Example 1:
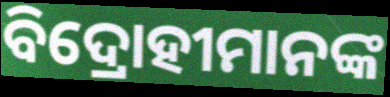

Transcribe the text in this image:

ବିଦ୍ରୋହୀମାନଙ୍କ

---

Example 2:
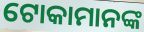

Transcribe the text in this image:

ଟୋକାମାନଙ୍କ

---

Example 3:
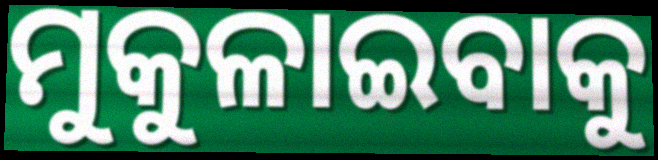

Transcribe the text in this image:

ମୁକୁଳାଇବାକୁ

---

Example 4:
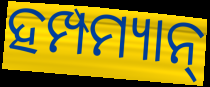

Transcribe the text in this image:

ହମ୍ପମ୍ୟାନ୍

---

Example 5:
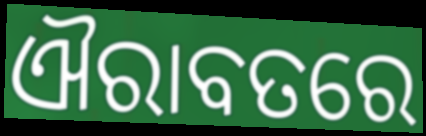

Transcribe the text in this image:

ଐରାବତରେ